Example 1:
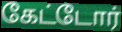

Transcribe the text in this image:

கேட்டோர்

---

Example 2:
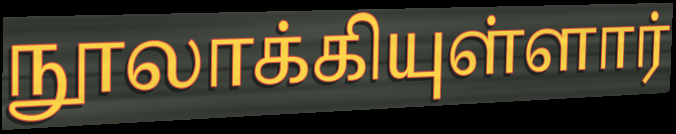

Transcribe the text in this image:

நூலாக்கியுள்ளார்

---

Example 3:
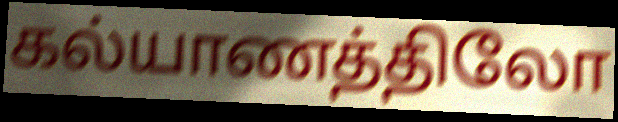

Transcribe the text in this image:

கல்யாணத்திலோ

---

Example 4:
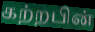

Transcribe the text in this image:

கற்றபின்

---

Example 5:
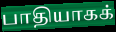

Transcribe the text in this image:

பாதியாகக்